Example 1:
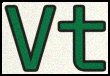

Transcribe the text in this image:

Vt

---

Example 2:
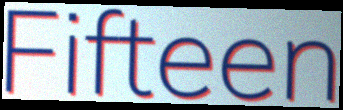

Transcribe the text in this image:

Fifteen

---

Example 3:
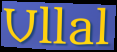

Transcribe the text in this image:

Ullal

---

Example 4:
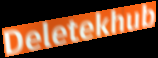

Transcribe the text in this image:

Deletekhub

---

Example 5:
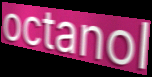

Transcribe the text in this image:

octanol